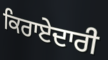
ਕਿਰਾਏਦਾਰੀ